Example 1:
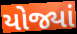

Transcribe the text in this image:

યોજ્યાં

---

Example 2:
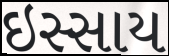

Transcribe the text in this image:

ઇસ્સાય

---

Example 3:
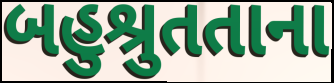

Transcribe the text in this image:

બહુશ્રુતતાના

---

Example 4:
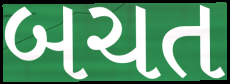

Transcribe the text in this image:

બચત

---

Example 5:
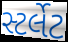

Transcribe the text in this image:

સ્ટર્લેટ